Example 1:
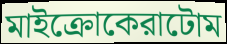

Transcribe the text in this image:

মাইক্রোকেরাটোম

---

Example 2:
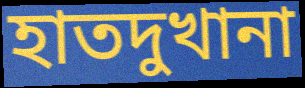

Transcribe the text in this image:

হাতদুখানা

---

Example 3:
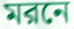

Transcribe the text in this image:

মরনে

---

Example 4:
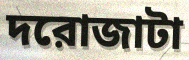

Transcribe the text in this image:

দরোজাটা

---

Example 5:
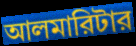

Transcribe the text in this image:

আলমারিটার